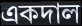
একদাল